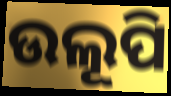
ଉଲୂପି